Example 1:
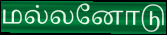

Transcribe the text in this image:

மல்லனோடு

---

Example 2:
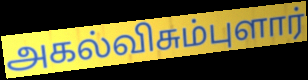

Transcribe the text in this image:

அகல்விசும்புளார்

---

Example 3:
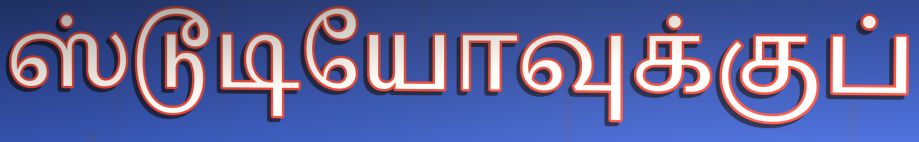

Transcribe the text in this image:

ஸ்டூடியோவுக்குப்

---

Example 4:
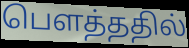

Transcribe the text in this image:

பௌத்ததில்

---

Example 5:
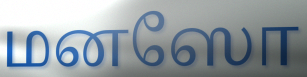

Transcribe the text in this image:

மனஸோ